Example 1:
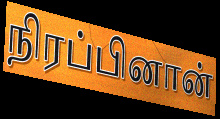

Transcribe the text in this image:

நிரப்பினான்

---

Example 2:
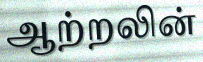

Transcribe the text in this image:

ஆற்றலின்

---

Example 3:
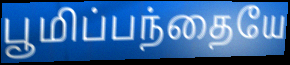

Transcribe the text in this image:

பூமிப்பந்தையே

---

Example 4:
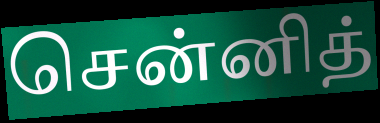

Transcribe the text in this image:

சென்னித்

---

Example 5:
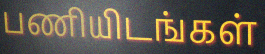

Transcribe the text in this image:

பணியிடங்கள்